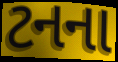
ટનના